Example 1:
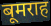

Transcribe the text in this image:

बूमराह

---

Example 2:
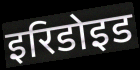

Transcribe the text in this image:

इरिडोइड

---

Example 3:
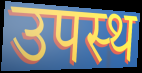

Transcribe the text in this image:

उपस्थ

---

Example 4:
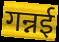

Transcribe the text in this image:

गन्नई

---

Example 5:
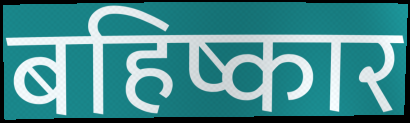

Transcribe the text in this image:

बहिष्‍कार